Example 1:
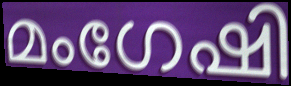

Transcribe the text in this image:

മംഗേഷി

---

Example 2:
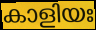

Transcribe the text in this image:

കാളിയഃ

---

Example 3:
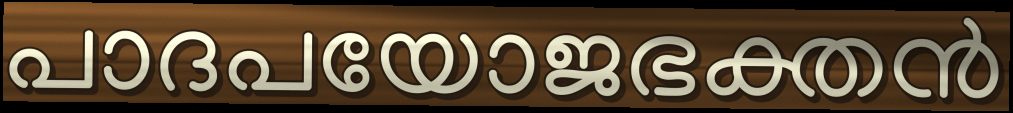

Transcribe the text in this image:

പാദപയോജഭക്തൻ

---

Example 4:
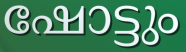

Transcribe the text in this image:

ഷോട്ടും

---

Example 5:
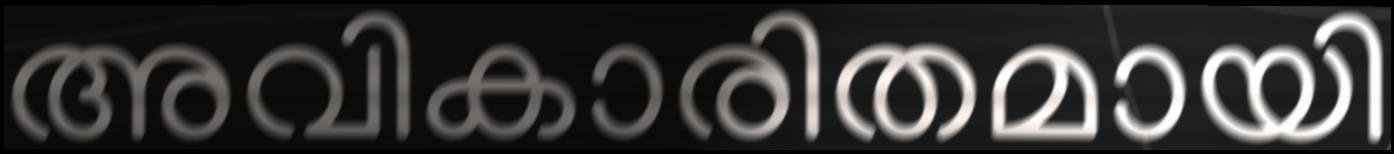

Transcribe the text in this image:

അവികാരിതമായി